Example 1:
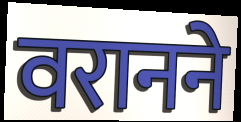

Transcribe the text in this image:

वरानने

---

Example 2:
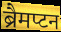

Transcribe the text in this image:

ब्रैमप्टन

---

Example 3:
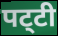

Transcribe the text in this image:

पट्‌टी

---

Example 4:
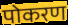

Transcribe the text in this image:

पोकरण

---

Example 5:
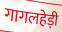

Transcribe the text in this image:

गागलहेड़ी